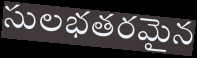
సులభతరమైన